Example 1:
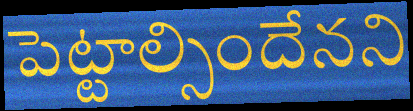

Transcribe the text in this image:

పెట్టాల్సిందేనని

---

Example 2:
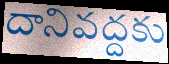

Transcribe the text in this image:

దానివద్దకు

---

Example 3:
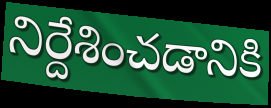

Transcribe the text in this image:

నిర్దేశించడానికి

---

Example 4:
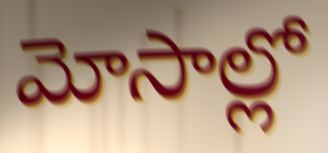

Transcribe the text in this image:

మోసాల్లో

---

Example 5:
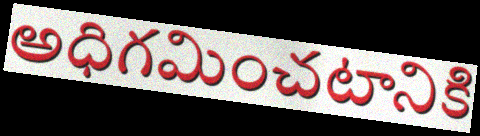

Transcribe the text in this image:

అధిగమించటానికి